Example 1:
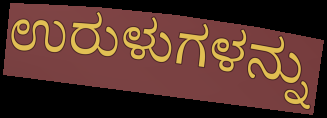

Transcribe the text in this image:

ಉರುಳುಗಳನ್ನು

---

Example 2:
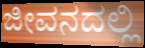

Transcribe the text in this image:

ಜೀವನದಲ್ಲಿ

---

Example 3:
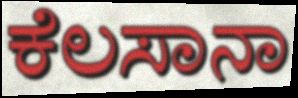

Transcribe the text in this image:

ಕೆಲಸಾನಾ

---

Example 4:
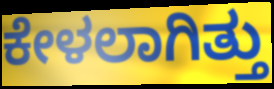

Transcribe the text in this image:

ಕೇಳಲಾಗಿತ್ತು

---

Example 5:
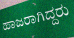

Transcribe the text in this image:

ಹಾಜರಾಗಿದ್ದರು